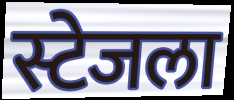
स्टेजला